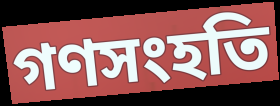
গণসংহতি